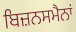
ਬਿਜ਼ਨਸਮੈਨਾਂ